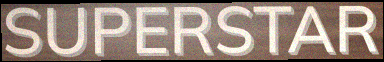
SUPERSTAR